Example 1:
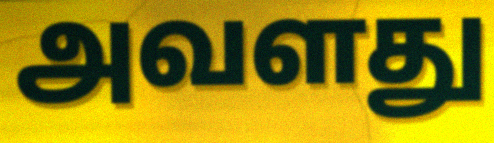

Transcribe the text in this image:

அவளது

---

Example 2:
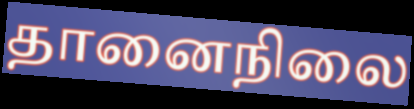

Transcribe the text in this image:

தானைநிலை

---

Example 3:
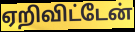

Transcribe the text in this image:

ஏறிவிட்டேன்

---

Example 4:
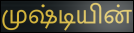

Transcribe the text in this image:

முஷ்டியின்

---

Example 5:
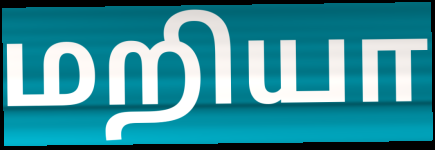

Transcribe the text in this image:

மறியா